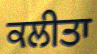
ਕਲੀਤਾ